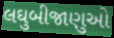
લઘુબીજાણુઓ